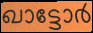
ഖാട്ടോർ